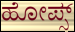
ಹೋಪ್ಸ್